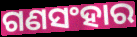
ଗଣସଂହାର